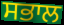
ਸਭਾਲ